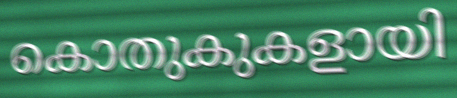
കൊതുകുകളായി